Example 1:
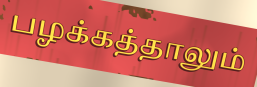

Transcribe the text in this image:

பழக்கத்தாலும்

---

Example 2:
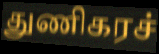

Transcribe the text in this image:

துணிகரச்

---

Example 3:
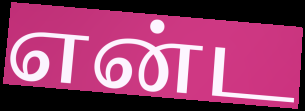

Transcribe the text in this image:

என்ட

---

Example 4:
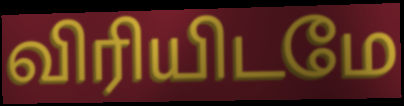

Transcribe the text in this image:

விரியிடமே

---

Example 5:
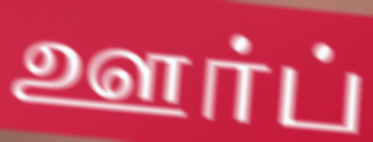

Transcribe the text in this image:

ஊர்ப்